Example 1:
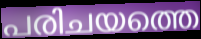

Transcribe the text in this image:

പരിചയത്തെ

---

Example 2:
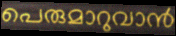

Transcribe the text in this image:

പെരുമാറുവാൻ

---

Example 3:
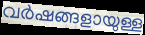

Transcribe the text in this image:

വർഷങ്ങളായുള്ള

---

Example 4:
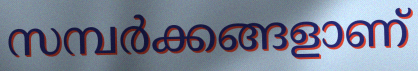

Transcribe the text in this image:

സമ്പർക്കങ്ങളാണ്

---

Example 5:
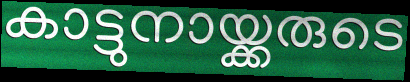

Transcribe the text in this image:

കാട്ടുനായ്ക്കരുടെ